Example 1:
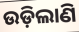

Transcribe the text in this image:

ଉଡ଼ିଲାଣି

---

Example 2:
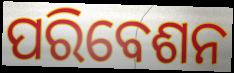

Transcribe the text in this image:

ପରିବେଶନ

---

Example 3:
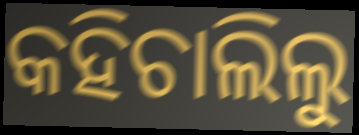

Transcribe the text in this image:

କହିଚାଲିଲୁ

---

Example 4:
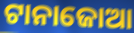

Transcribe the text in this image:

ଟାନାଜୋଆ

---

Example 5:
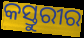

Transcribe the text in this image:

କସ୍ତୁରୀର